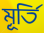
মূৰ্তি